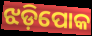
ଝଡ଼ିପୋକ